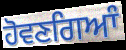
ਹੋਵਣਗਿਆੰ